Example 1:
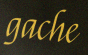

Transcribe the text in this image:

gache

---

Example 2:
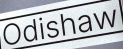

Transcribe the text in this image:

Odishaw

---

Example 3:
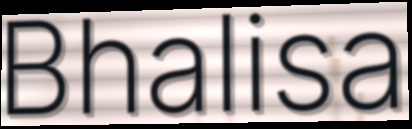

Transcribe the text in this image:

Bhalisa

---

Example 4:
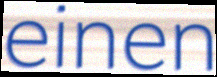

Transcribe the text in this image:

einen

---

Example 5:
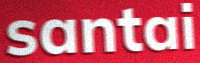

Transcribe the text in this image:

santai